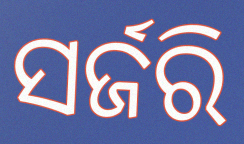
ସର୍ଜରି